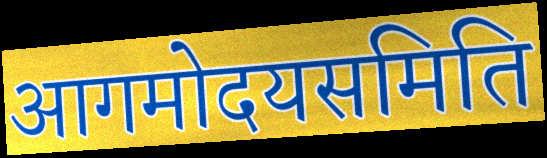
आगमोदयसमिति